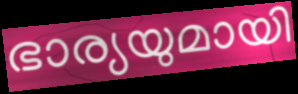
ഭാര്യയുമായി